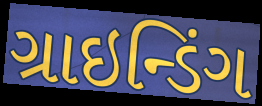
ગ્રાઇન્ડિંગ